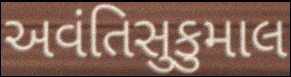
અવંતિસુકુમાલ